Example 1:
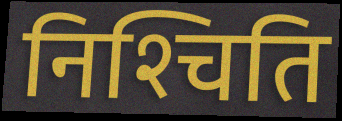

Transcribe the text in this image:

निश्चिति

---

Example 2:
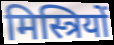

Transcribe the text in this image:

मिस्त्रियों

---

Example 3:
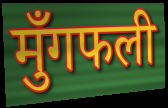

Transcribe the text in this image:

मुँगफली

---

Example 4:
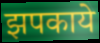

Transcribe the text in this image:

झपकाये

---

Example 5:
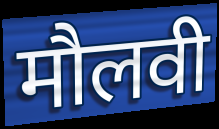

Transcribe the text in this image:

मौलवी